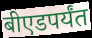
बीएडपर्यंत